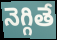
నెగ్గితే